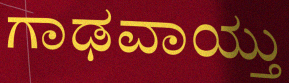
ಗಾಢವಾಯ್ತು